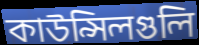
কাউন্সিলগুলি